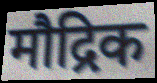
मौद्रिक